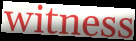
witness